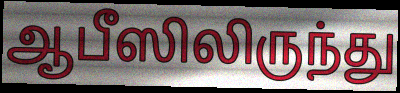
ஆபீஸிலிருந்து